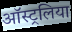
ऑस्ट्रलिया